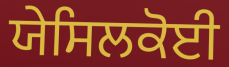
ਯੇਸਿਲਕੋਈ